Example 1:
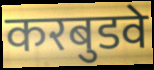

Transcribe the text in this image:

करबुडवे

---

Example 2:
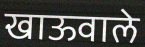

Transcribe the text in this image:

खाऊवाले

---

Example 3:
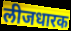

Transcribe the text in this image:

लीजधारक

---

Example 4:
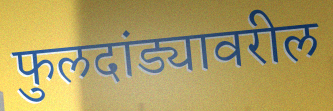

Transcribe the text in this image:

फुलदांड्यावरील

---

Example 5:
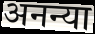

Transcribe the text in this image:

अनन्या